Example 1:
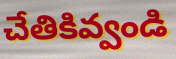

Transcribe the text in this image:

చేతికివ్వండి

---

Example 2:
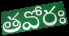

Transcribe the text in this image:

తవోరః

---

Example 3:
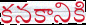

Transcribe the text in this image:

కనకానికి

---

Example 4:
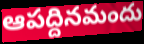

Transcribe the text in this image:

ఆపద్దినమందు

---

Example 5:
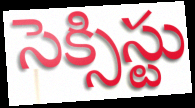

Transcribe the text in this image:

సెక్సిస్టు